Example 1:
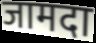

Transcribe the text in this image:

जामदा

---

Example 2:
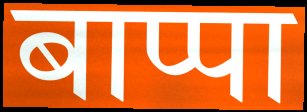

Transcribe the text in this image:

बाप्पा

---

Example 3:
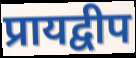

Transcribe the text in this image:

प्रायद्वीप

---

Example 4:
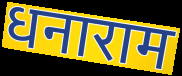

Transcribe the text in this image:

धनाराम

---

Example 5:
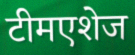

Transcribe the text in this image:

टीमएशेज